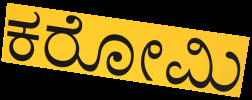
ಕರೋಮಿ